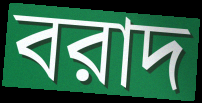
বরাদ